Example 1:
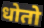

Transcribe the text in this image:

धोतो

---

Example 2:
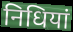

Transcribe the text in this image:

निधियां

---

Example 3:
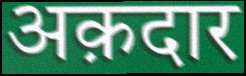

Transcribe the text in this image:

अक़दार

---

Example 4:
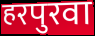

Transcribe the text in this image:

हरपुरवा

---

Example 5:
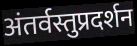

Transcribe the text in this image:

अंतर्वस्तुप्रदर्शन